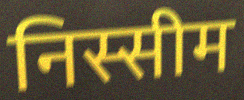
निस्सीम